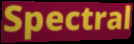
Spectral